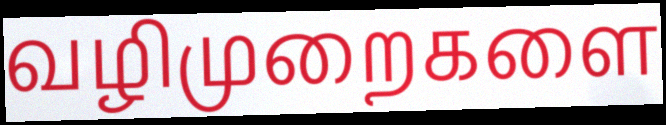
வழிமுறைகளை